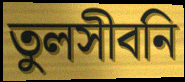
তুলসীবনি